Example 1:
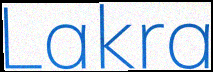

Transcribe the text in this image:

Lakra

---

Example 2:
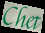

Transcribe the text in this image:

Chet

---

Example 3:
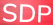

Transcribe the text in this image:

SDP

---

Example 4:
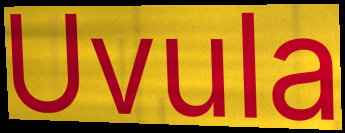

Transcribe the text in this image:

Uvula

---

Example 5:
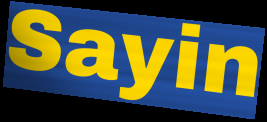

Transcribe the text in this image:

Sayin